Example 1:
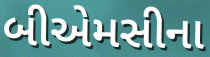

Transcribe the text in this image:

બીએમસીના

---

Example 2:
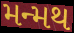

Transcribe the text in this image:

મન્મથ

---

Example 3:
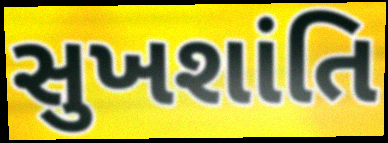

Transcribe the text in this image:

સુખશાંતિ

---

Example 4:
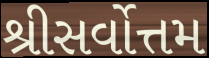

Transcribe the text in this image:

શ્રીસર્વોત્તમ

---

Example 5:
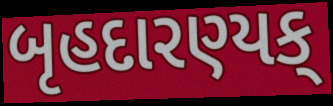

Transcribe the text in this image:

બૃહદારણ્યક્